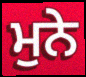
ਮੁਨੇ